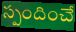
స్పందించే